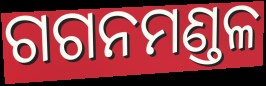
ଗଗନମଣ୍ଡଳ